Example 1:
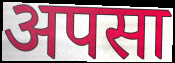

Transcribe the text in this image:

अपसा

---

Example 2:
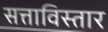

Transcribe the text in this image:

सत्ताविस्तार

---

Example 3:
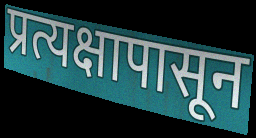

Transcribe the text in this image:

प्रत्यक्षापासून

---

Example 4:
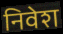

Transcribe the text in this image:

निवेश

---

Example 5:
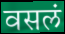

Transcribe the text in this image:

वसलं